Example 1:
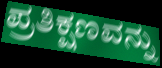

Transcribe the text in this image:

ಪ್ರತಿಕ್ಷಣವನ್ನು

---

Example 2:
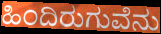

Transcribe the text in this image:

ಹಿಂದಿರುಗುವೆನು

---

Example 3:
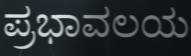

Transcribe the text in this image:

ಪ್ರಭಾವಲಯ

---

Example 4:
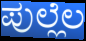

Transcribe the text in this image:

ಪುಲ್ಲೆಲ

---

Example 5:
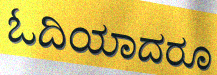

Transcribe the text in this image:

ಓದಿಯಾದರೂ